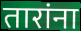
तारांना